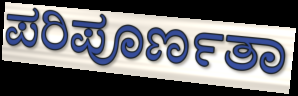
ಪರಿಪೂರ್ಣತಾ